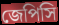
জেপিসি